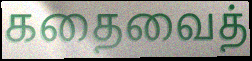
கதைவைத்